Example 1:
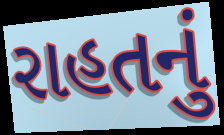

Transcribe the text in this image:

રાહતનું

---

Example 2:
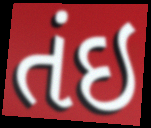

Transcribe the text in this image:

તંઇ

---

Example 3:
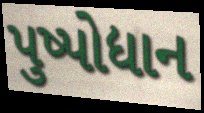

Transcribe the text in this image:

પુષ્પોદ્યાન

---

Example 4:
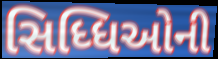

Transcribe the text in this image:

સિધ્ધિઓની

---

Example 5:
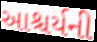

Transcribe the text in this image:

આશ્ચર્યની